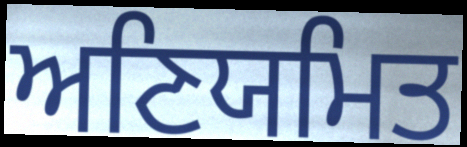
ਅਣਿਯਮਿਤ